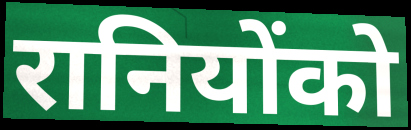
रानियोंको